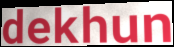
dekhun